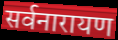
सर्वनारायण